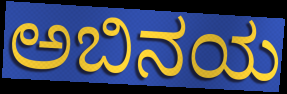
ಅಬಿನಯ